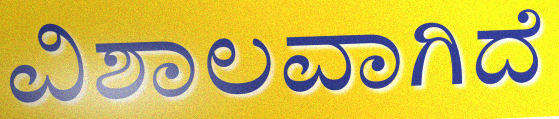
ವಿಶಾಲವಾಗಿದೆ